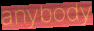
anybody